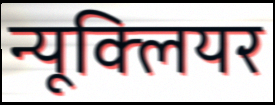
न्‍यूक्‍लियर